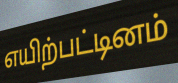
எயிற்பட்டினம்